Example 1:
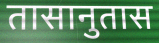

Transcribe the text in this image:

तासानुतास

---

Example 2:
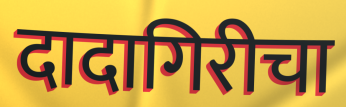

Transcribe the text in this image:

दादागिरीचा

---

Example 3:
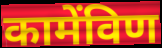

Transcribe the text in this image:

कामेंविण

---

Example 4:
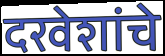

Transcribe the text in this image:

दरवेशांचे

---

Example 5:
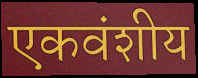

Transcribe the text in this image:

एकवंशीय